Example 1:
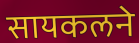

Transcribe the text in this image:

सायकलने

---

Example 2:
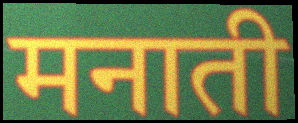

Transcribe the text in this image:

मनाती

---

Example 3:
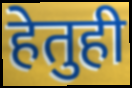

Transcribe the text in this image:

हेतुही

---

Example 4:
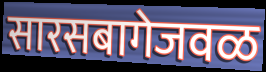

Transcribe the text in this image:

सारसबागेजवळ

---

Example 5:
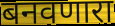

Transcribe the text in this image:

बनवणारा